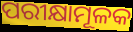
ପରୀକ୍ଷାମୂଳକ